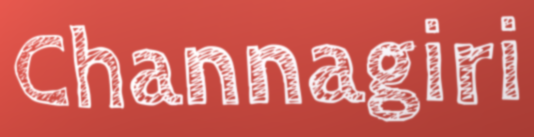
Channagiri